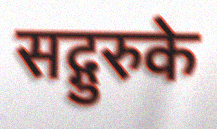
सद्गुरुके